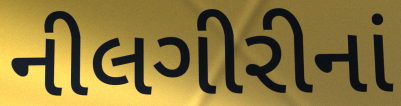
નીલગીરીનાં